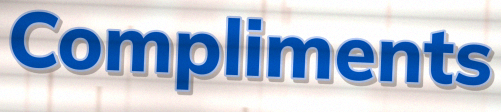
Compliments